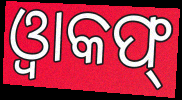
ଓ୍ଵାକଫ୍